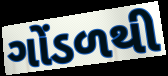
ગોંડળથી